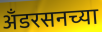
अँडरसनच्या